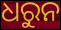
ଧରୁନ